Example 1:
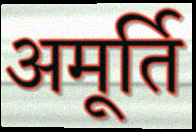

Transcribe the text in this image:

अमूर्ति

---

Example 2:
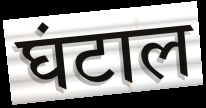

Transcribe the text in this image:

घंटाल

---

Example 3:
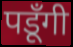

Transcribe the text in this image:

पडूँगी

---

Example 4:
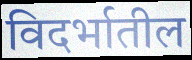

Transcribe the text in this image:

विदर्भातील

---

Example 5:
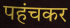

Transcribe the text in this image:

पहंचकर